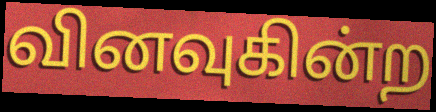
வினவுகின்ற